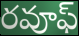
రవూఫ్